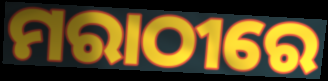
ମରାଠୀରେ